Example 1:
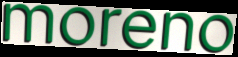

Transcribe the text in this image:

moreno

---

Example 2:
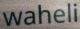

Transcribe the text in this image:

waheli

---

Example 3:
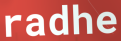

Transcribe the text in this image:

radhe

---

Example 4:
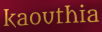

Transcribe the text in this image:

kaouthia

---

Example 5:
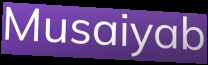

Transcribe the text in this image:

Musaiyab